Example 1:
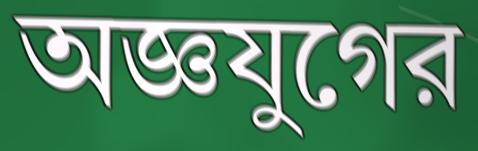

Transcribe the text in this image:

অজ্ঞযুগের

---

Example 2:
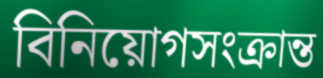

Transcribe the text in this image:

বিনিয়োগসংক্রান্ত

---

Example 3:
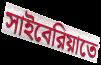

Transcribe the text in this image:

সাইবেরিয়াতে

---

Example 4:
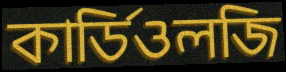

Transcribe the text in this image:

কার্ডিওলজি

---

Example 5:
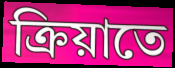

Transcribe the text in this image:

ক্রিয়াতে